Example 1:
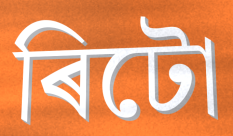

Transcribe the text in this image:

ৰিটো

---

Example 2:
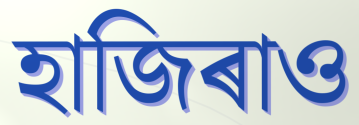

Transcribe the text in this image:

হাজিৰাও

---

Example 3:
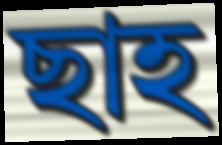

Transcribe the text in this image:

ছাহ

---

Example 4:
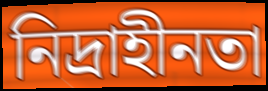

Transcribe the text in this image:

নিদ্ৰাহীনতা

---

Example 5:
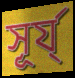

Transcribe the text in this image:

সূৰ্য্